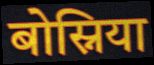
बोस्निया